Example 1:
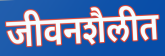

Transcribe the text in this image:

जीवनशैलीत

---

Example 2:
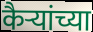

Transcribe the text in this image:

कैऱ्यांच्या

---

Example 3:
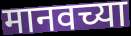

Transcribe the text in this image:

मानवच्या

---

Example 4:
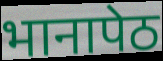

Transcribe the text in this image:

भानापेठ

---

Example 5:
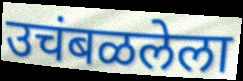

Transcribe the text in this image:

उचंबळलेला